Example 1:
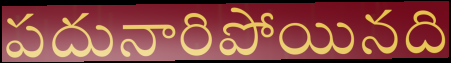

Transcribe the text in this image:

పదునారిపోయినది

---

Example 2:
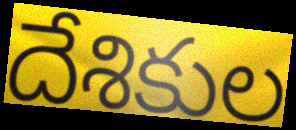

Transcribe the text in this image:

దేశికుల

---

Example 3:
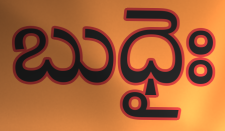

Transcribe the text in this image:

బుధైః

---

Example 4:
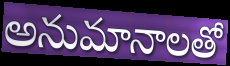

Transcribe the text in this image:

అనుమానాలతో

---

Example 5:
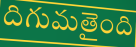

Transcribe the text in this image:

దిగుమతైంది